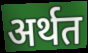
अर्थत